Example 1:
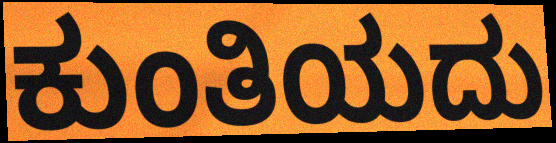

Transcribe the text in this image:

ಕುಂತಿಯದು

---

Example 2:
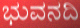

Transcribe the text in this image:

ಭುವನದಿ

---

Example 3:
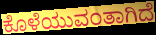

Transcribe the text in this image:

ಕೊಳೆಯುವಂತಾಗಿದೆ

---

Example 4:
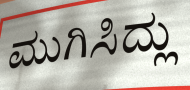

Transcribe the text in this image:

ಮುಗಿಸಿದ್ಲು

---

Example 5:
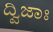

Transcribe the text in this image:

ದ್ವಿಜಾಃ